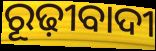
ରୂଢ଼ୀବାଦୀ